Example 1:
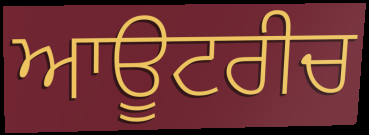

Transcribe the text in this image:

ਆਊਟਰੀਚ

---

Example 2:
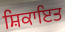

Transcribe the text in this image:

ਸ਼ਿਕਾਇਤ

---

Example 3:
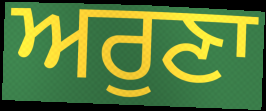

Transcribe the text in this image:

ਅਰੁਣਾ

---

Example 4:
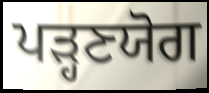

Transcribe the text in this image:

ਪੜ੍ਹਣਯੋਗ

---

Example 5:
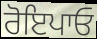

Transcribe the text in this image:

ਰੋਇਪਾਓ